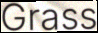
Grass